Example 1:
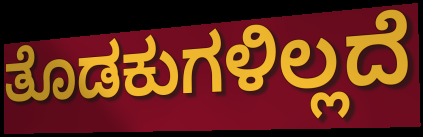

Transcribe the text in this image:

ತೊಡಕುಗಳಿಲ್ಲದೆ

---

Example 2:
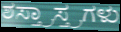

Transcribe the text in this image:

ಶಸ್ತ್ರಾಸ್ತ್ರಗಳು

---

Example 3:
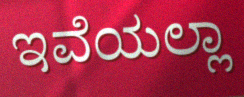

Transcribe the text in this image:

ಇವೆಯಲ್ಲಾ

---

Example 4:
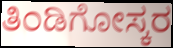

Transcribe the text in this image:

ತಿಂಡಿಗೋಸ್ಕರ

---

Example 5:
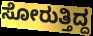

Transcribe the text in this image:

ಸೋರುತ್ತಿದ್ದ